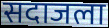
सदाजला